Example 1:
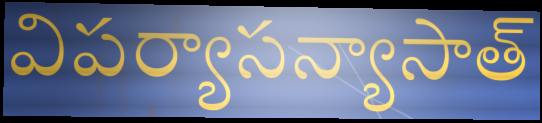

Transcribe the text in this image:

విపర్యాసన్యాసాత్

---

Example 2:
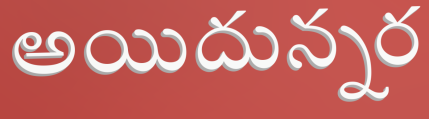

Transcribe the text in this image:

అయిదున్నర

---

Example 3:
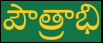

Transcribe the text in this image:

పౌత్రాభి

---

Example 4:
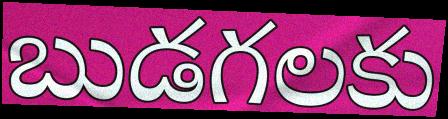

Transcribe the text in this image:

బుడగలకు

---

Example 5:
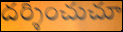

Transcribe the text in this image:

దర్శించుచూ